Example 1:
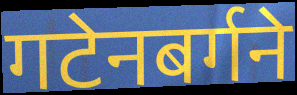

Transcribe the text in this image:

गटेनबर्गने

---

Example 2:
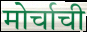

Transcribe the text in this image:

मोर्चाची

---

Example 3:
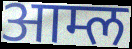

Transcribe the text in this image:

आम्‍ल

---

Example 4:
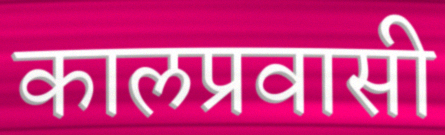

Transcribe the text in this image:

कालप्रवासी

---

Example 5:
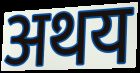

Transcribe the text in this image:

अथय